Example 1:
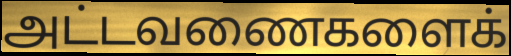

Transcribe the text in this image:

அட்டவணைகளைக்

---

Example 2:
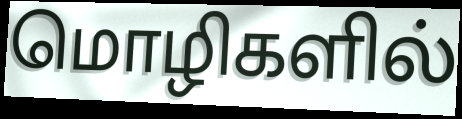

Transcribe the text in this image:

மொழிகளில்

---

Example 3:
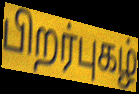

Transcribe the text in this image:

பிறர்புகழ்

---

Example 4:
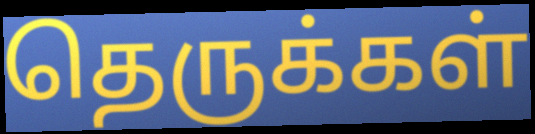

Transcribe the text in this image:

தெருக்கள்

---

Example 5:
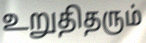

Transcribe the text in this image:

உறுதிதரும்